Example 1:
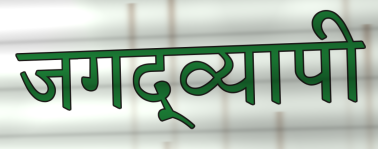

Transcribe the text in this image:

जगद्व्यापी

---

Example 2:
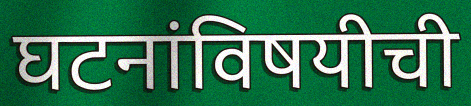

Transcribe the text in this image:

घटनांविषयीची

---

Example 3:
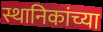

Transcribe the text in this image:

स्थानिकांच्या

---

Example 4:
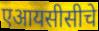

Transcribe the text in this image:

एआयसीसीचे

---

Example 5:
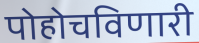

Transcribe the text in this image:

पोहोचविणारी